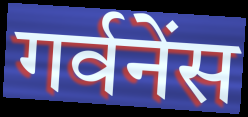
गर्वनेंस